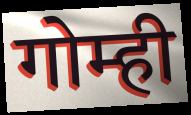
गोम्ही